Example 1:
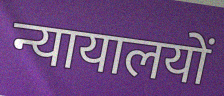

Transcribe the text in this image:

न्यायालयों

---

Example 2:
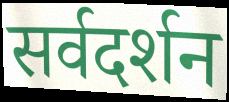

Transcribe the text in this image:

सर्वदर्शन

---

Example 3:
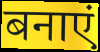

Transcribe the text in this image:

बनाएं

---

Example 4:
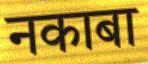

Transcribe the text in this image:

नकाबा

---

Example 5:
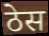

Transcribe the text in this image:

ठेस